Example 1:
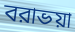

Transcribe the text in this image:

বরাভয়া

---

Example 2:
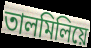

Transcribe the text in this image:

তালমিলিয়ে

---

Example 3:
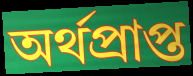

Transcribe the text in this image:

অর্থপ্রাপ্ত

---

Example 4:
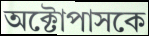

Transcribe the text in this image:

অক্টোপাসকে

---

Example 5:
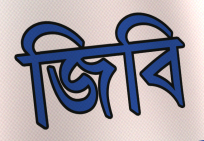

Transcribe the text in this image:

জিবি